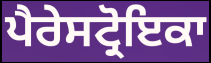
ਪੈਰੇਸਟ੍ਰੋਇਕਾ